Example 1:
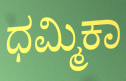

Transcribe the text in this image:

ಧಮ್ಮಿಕಾ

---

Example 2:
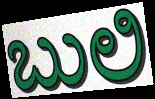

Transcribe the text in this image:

ಬುಲಿ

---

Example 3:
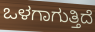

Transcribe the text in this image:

ಒಳಗಾಗುತ್ತಿದೆ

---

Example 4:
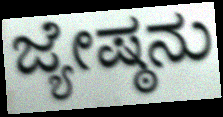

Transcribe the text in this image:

ಜ್ಯೇಷ್ಠನು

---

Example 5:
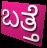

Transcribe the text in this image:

ಬತ್ತೆ